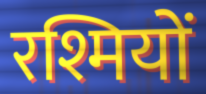
रश्मियों